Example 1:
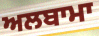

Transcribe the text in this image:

ਅਲਬਾਮਾ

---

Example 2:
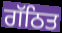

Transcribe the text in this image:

ਗੱਠਿਤ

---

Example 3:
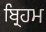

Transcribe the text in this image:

ਬ੍ਰਿਹਮ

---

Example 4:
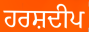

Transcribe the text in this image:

ਹਰਸ਼ਦੀਪ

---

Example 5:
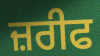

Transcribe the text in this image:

ਜ਼ਰੀਫ